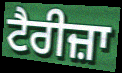
ਟੈਰੀਜ਼ਾ